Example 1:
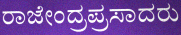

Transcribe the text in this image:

ರಾಜೇಂದ್ರಪ್ರಸಾದರು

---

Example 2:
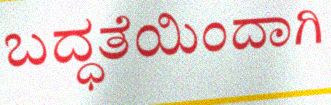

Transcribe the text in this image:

ಬದ್ಧತೆಯಿಂದಾಗಿ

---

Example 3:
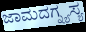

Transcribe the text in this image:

ಜಾಮದಗ್ನ್ಯಸ್ಯ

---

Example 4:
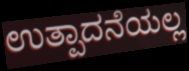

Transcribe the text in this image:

ಉತ್ಪಾದನೆಯಲ್ಲ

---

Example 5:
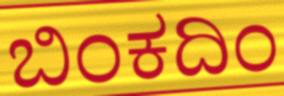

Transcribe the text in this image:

ಬಿಂಕದಿಂ